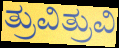
ತ್ರುವಿತ್ರುವಿ